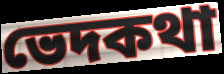
ভেদকথা